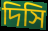
দিসি